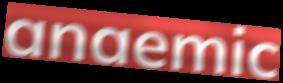
anaemic